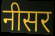
नीसर